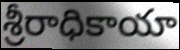
శ్రీరాధికాయా